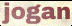
jogan